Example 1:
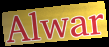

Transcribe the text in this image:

Alwar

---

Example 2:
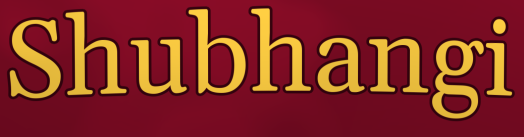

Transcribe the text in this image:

Shubhangi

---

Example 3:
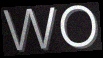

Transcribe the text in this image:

WO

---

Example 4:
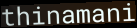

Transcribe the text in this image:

thinamani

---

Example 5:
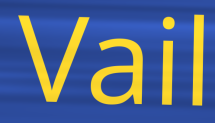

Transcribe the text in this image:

Vail